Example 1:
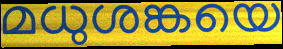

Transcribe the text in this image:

മധുശങ്കയെ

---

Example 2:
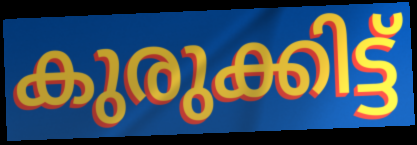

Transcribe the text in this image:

കുരുക്കിട്ട്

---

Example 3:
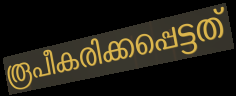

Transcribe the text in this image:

രൂപീകരിക്കപ്പെട്ടത്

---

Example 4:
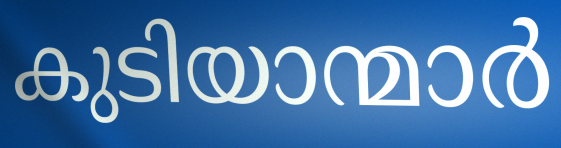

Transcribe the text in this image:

കുടിയാന്മാർ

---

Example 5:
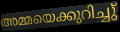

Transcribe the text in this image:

അമ്മയെക്കുറിച്ചു്